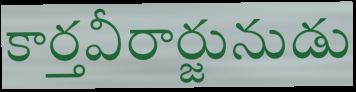
కార్తవీరార్జునుడు